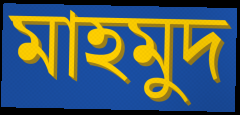
মাহমুদ